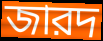
জারদ